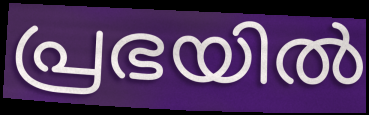
പ്രഭയിൽ